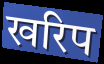
खरिप